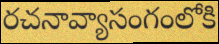
రచనావ్యాసంగంలోకి